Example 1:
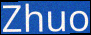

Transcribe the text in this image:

Zhuo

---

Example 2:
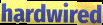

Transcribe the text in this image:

hardwired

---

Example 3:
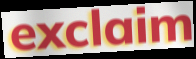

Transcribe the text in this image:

exclaim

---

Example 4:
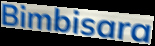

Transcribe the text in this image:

Bimbisara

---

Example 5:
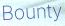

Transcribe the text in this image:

Bounty